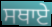
ਸਥਾਏ